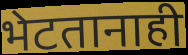
भेटतानाही